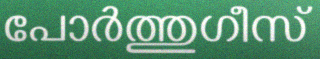
പോർത്തുഗീസ്